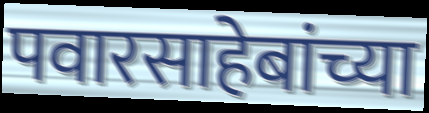
पवारसाहेबांच्या